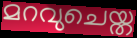
മറവുചെയ്ത